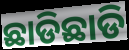
ଛାଡିଛାଡି